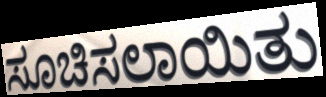
ಸೂಚಿಸಲಾಯಿತು